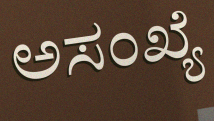
ಅಸಂಖ್ಯೆ